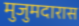
मुजुमदारास